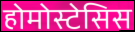
होमोस्टेसिस